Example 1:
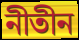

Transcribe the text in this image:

নীতীন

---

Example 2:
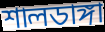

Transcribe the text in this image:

শালডাঙ্গা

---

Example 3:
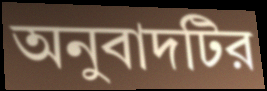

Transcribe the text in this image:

অনুবাদটির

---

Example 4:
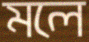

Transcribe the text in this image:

মলে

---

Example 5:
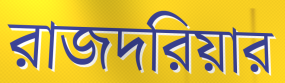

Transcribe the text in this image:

রাজদরিয়ার